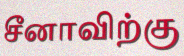
சீனாவிற்கு